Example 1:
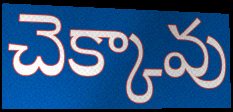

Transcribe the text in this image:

చెక్కావు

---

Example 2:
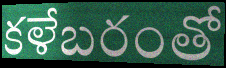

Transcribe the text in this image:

కళేబరంతో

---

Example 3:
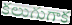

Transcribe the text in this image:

కలుగుగాక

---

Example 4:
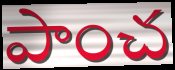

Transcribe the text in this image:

పాంచ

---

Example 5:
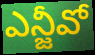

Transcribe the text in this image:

ఎన్జీవో